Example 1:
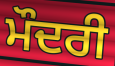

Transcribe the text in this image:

ਮੌਦਰੀ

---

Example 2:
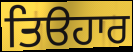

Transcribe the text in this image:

ਤਿੳਹਾਰ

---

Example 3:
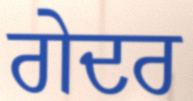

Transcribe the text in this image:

ਗੇਦਰ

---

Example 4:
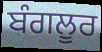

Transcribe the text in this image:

ਬੰਗਲੂਰ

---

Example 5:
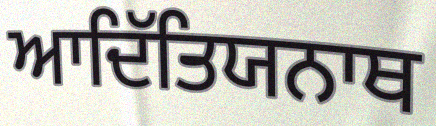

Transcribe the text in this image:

ਆਦਿੱਤਿਯਨਾਥ